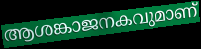
ആശങ്കാജനകവുമാണ്